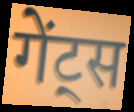
गेंट्स